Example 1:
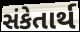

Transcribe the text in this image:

સંકેતાર્થ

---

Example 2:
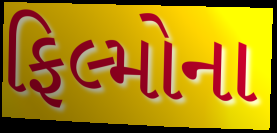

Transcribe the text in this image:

ફિલ્મોના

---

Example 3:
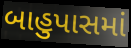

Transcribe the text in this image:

બાહુપાસમાં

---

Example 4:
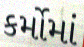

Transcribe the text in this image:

કર્મોમાં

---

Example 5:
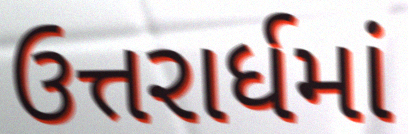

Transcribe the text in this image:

ઉત્તરાર્ધમાં